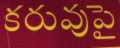
కరువుపై